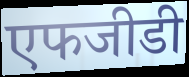
एफजीडी